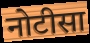
नोटीसा